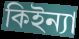
কিইন্যা